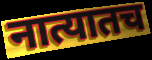
नात्यातच